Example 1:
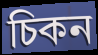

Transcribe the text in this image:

চিকন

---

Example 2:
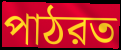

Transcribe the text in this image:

পাঠরত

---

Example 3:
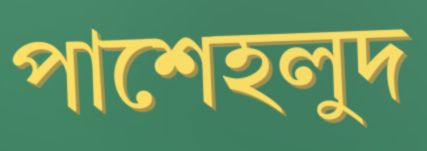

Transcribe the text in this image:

পাশেহলুদ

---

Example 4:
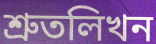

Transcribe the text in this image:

শ্রুতলিখন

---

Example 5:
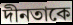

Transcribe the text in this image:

দীনতাকে